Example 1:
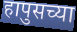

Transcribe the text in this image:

हापुसच्या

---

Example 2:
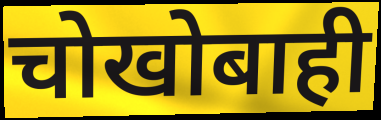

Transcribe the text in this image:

चोखोबाही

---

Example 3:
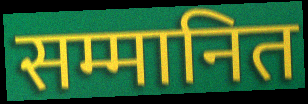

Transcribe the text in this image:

सम्मानित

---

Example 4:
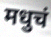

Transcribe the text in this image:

मधुचं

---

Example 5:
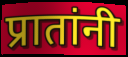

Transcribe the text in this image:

प्रातांनी